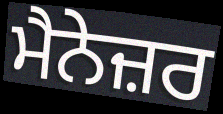
ਮੈਨੇਜ਼ਰ